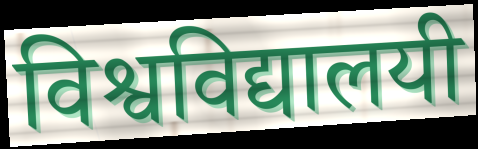
विश्वविद्यालयी